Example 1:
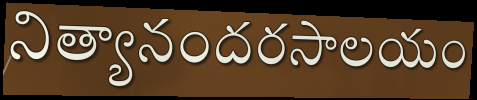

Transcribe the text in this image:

నిత్యానందరసాలయం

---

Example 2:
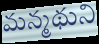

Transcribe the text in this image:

మన్మథుని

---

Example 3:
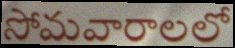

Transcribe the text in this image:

సోమవారాలలో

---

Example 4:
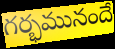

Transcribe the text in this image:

గర్భమునందే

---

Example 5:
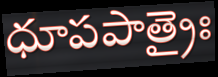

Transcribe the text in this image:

ధూపపాత్రైః